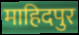
माहिदपुर